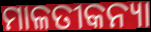
ମାଳତୀକନ୍ୟା